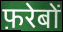
फ़रेबों